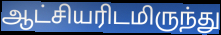
ஆட்சியரிடமிருந்து